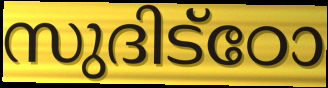
സുദിട്ഠോ